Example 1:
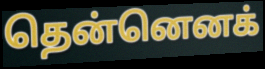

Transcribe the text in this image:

தென்னெனக்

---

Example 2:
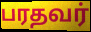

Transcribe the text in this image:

பரதவர்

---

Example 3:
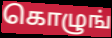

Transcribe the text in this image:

கொழுங்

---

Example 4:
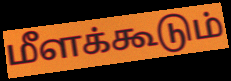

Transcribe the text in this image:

மீளக்கூடும்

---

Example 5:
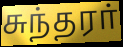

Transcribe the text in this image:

சுந்தரர்